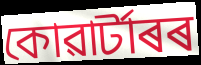
কোৱাৰ্টাৰৰ